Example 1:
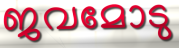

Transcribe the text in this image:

ജവമോടു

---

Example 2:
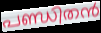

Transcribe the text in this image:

പണ്ഡിതൻ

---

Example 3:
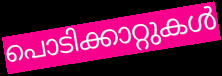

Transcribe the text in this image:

പൊടിക്കാറ്റുകൾ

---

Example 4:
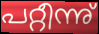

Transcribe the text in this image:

പറ്റീന്നു്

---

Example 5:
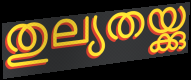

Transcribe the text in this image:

തുല്യതയ്ക്കു